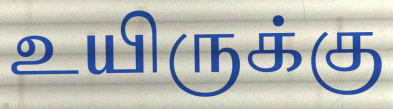
உயிருக்கு